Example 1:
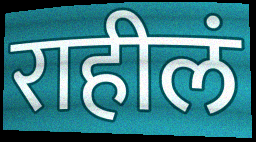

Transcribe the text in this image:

राहीलं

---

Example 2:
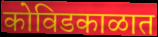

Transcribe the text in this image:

कोविडकाळात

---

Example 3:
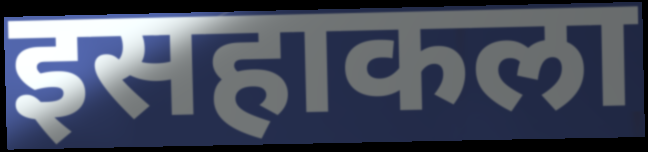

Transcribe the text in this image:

इसहाकला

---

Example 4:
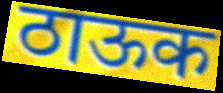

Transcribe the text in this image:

ठाऊक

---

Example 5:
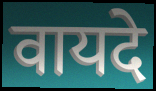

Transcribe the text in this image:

वायदे